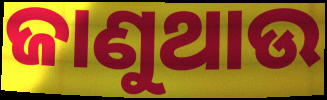
ଜାଣୁଥାଉ